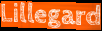
Lillegard